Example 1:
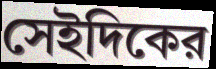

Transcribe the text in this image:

সেইদিকের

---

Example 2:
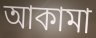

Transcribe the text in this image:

আকামা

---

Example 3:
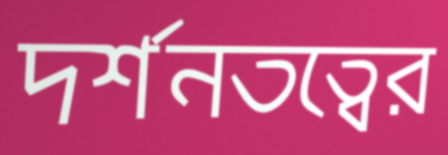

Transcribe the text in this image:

দর্শনতত্বের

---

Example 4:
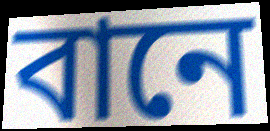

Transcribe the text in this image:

বানে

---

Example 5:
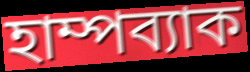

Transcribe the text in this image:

হাম্পব্যাক